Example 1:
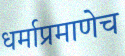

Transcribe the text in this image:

धर्माप्रमाणेच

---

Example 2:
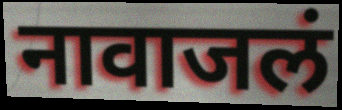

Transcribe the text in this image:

नावाजलं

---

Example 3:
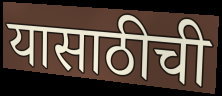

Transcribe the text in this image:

यासाठीची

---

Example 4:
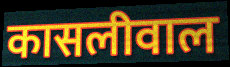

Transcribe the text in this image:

कासलीवाल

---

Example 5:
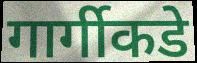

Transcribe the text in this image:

गार्गीकडे